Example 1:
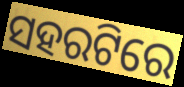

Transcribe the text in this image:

ସହରଟିରେ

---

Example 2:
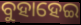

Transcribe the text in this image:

ବୁହାହେଇ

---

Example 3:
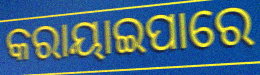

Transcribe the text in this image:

କରାୟାଇପାରେ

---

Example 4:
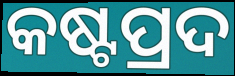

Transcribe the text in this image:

କଷ୍ଟପ୍ରଦ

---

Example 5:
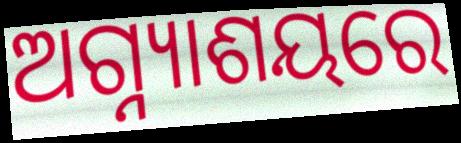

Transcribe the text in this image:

ଅଗ୍ନ୍ୟାଶୟରେ